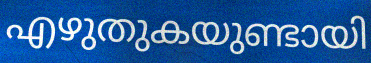
എഴുതുകയുണ്ടായി